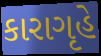
કારાગૃહે